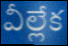
వీల్లేక